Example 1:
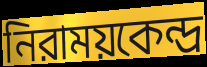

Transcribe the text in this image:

নিরাময়কেন্দ্র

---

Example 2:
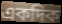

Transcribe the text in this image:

একদিক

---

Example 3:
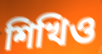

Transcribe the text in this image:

শিখিও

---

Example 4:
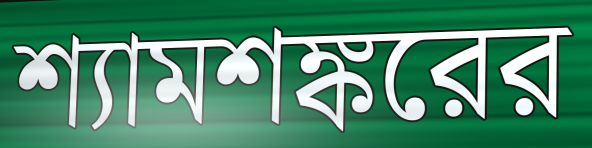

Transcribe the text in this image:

শ্যামশঙ্করের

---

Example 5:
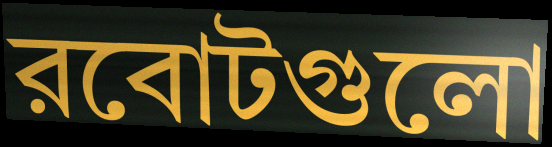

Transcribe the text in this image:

রবোটগুলো